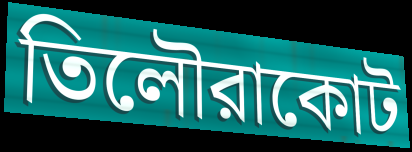
তিলৌরাকোট